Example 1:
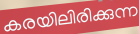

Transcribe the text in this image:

കരയിലിരിക്കുന്ന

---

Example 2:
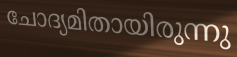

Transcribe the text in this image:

ചോദ്യമിതായിരുന്നു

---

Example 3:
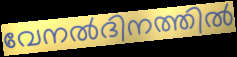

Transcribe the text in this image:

വേനൽദിനത്തിൽ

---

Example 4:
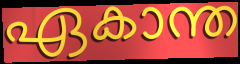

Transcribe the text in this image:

ഏകാന്ത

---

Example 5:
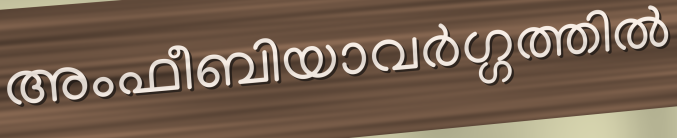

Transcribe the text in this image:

അംഫീബിയാവർഗ്ഗത്തിൽ